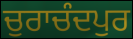
ਚੁਰਾਚੰਦਪੁਰ